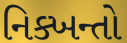
નિક્ખન્તો